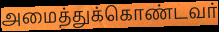
அமைத்துக்கொண்டவர்